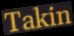
Takin